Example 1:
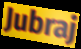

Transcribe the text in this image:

Jubraj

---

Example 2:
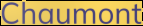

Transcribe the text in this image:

Chaumont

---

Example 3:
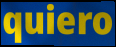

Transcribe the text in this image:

quiero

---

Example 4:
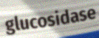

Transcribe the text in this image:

glucosidase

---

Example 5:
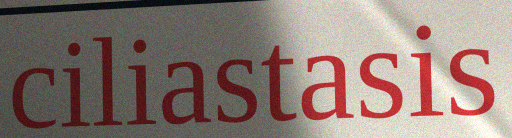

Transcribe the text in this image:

ciliastasis